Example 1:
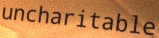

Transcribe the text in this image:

uncharitable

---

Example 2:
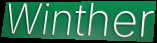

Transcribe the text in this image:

Winther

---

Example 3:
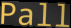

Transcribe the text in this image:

Pall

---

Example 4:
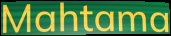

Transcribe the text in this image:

Mahtama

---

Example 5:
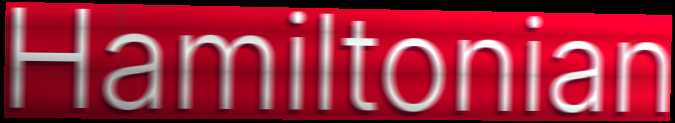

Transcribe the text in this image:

Hamiltonian